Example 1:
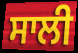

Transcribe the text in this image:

ਸਾਲੀ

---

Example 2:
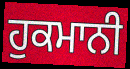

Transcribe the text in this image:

ਹੁਕਮਾਨੀ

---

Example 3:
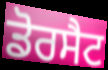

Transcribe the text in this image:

ਡੋਰਸੈਟ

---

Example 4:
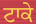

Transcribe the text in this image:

ਟਾਕੇ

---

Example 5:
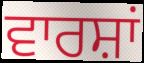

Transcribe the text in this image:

ਵਾਰਸ਼ਾਂ